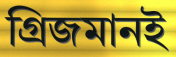
গ্রিজমানই